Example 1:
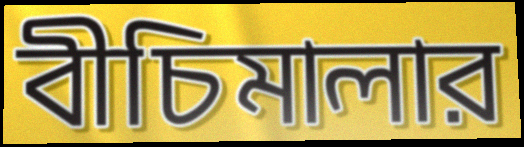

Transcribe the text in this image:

বীচিমালার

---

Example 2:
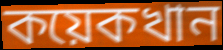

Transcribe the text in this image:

কয়েকখান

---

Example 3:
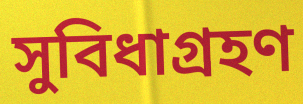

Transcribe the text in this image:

সুবিধাগ্রহণ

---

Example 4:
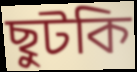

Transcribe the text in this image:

ছুটকি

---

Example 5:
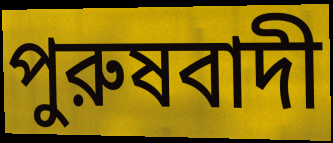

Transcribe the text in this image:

পুরুষবাদী